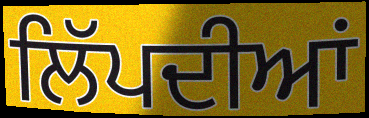
ਲਿੱਪਦੀਆਂ